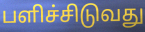
பளிச்சிடுவது